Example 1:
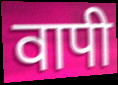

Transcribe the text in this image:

वापी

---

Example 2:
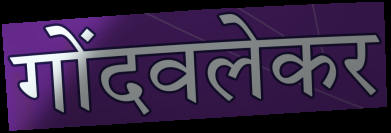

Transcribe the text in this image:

गोंदवलेकर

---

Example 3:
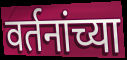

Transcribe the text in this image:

वर्तनांच्या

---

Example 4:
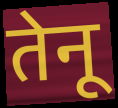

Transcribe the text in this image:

तेनू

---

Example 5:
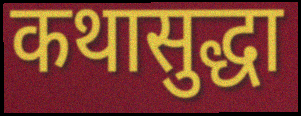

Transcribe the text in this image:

कथासुद्धा